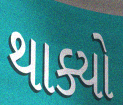
થાક્યો